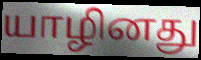
யாழினது